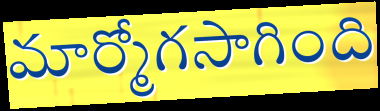
మార్మోగసాగింది